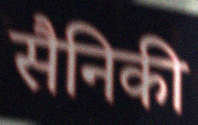
सैनिकी